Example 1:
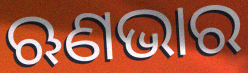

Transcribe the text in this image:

ଋଣଭାର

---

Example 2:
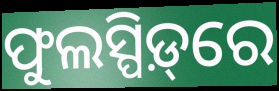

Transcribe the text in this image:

ଫୁଲସ୍ପିଡ଼୍‌ରେ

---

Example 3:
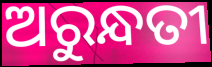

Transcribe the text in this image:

ଅରୁନ୍ଧତୀ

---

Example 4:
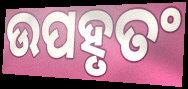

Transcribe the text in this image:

ଉପହୃତଂ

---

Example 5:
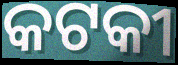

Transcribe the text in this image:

କଟକୀ